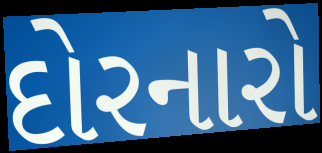
દોરનારો